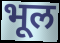
भूल